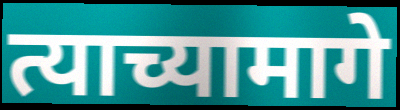
त्याच्यामागे